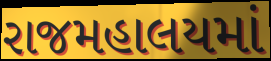
રાજમહાલયમાં